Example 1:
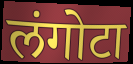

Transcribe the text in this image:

लंगोटा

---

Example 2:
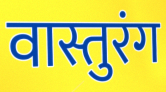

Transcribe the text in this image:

वास्तुरंग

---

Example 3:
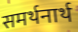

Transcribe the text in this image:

समर्थनार्थ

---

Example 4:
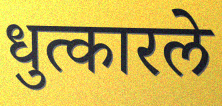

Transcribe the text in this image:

धुत्कारले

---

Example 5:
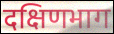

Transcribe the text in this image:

दक्षिणभाग